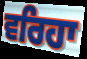
ਵਰਿਹਾ